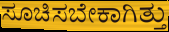
ಸೂಚಿಸಬೇಕಾಗಿತ್ತು